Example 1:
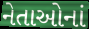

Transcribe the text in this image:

નેતાઓનાં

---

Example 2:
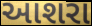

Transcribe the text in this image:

આશરા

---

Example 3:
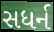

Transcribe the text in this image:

સધર્ન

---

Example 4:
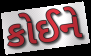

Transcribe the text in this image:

કોઈને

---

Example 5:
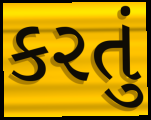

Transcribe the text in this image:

કરતું